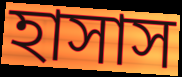
হাসাস